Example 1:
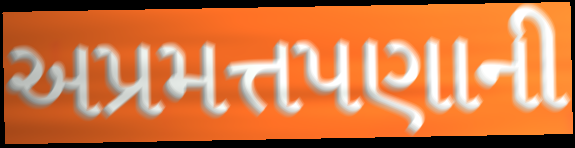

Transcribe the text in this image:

અપ્રમત્તપણાની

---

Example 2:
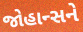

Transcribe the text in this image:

જોહાન્સને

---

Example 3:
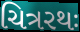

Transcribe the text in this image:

ચિત્રરથઃ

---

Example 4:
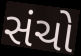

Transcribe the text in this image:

સંચો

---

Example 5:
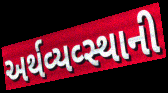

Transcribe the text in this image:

અર્થવ્યવ્સ્થાની